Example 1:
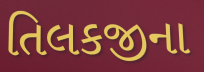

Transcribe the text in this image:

તિલકજીના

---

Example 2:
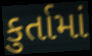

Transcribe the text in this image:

કુર્તામાં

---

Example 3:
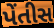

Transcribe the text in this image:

પેંતીસ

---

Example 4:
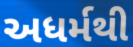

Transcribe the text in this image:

અધર્મથી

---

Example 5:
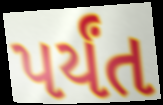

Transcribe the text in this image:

પર્યંત